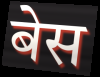
बेस